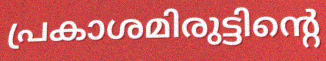
പ്രകാശമിരുട്ടിന്റെ